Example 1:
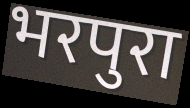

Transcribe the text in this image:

भरपुरा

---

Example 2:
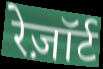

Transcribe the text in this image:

रेज़ॉर्ट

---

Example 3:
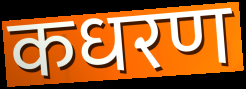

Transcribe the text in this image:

कधरण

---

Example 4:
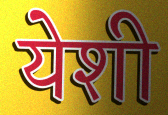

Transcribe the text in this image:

येशी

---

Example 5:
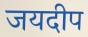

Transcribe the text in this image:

जयदीप